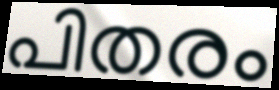
പിതരം